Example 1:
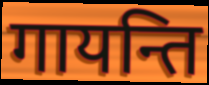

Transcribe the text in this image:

गायन्ति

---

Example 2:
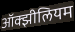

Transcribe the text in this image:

ऑक्झीलियम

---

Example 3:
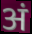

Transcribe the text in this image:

अं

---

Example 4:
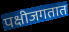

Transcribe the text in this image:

पक्षीजगतात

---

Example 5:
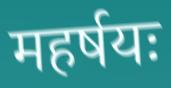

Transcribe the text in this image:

महर्षयः